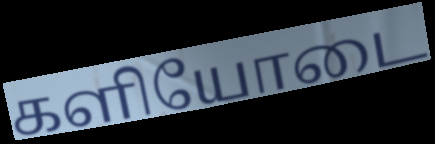
களியோடை